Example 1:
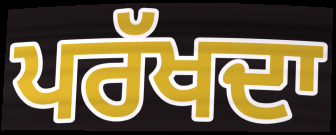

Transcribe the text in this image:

ਪਰੱਖਦਾ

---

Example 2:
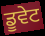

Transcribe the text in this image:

ਡੂਵੇਟ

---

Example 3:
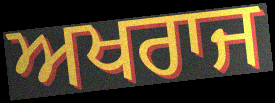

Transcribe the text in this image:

ਅਖਰਾਜ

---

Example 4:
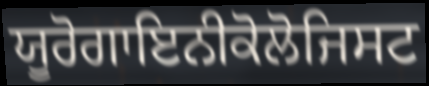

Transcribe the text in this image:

ਯੂਰੋਗਾਇਨੀਕੋਲੋਜਿਸਟ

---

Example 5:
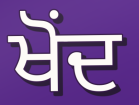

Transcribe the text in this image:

ਖੋਂਦ